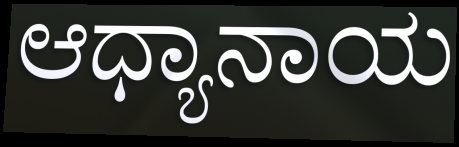
ಆಧ್ಯಾನಾಯ